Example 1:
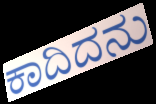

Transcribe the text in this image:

ಕಾದಿದನು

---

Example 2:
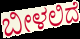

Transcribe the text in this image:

ಬೀಳಲಿದೆ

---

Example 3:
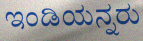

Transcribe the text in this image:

ಇಂಡಿಯನ್ನರು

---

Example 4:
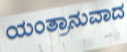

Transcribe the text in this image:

ಯಂತ್ರಾನುವಾದ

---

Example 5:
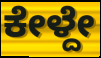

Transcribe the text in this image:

ಕೇಳ್ದೇ